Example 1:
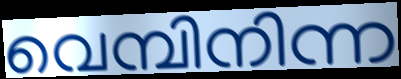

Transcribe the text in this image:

വെമ്പിനിന്ന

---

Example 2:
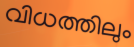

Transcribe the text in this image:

വിധത്തിലും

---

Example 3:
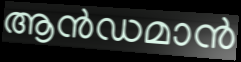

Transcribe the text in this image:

ആൻഡമാൻ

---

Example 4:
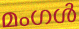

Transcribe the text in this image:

മംഗൾ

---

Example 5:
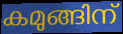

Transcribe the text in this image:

കമുങ്ങിന്